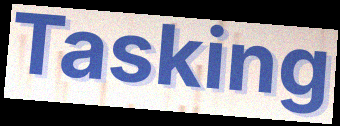
Tasking